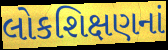
લોકશિક્ષણનાં